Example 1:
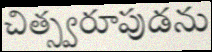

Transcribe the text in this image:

చిత్స్వరూపుడను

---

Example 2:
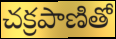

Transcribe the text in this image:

చక్రపాణితో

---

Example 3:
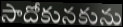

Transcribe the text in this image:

సాదోకునకును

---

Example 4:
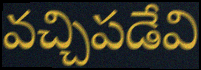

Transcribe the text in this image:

వచ్చిపడేవి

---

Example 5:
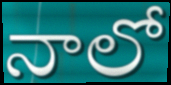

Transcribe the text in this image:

నాలో